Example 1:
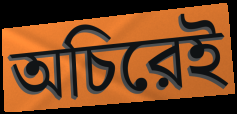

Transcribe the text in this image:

অচিরেই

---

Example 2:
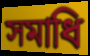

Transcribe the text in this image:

সমাধি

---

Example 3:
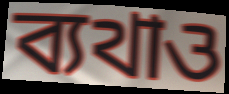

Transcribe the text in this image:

ব্যথাও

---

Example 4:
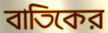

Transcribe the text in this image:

বাতিকের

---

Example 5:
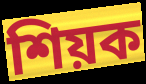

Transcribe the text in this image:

শিয়ক